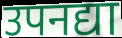
उपनद्या